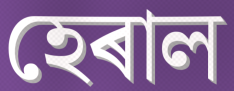
হেৰাল